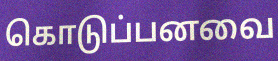
கொடுப்பனவை